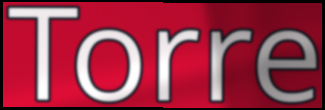
Torre